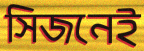
সিজনেই